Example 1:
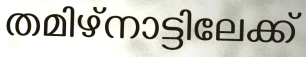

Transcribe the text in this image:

തമിഴ്നാട്ടിലേക്ക്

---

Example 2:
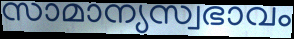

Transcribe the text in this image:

സാമാന്യസ്വഭാവം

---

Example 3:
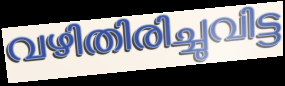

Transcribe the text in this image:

വഴിതിരിച്ചുവിട്ട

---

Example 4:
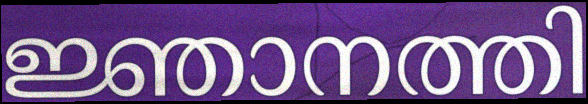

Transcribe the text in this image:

ജ്ഞാനത്തി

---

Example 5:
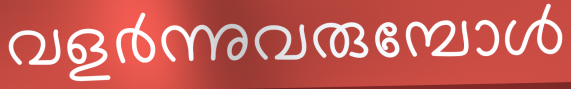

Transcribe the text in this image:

വളർന്നുവരുമ്പോൾ